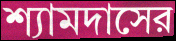
শ্যামদাসের